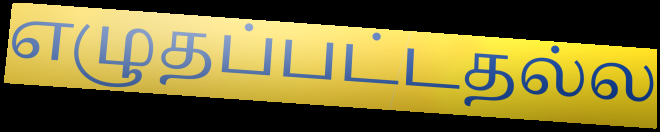
எழுதப்பட்டதல்ல